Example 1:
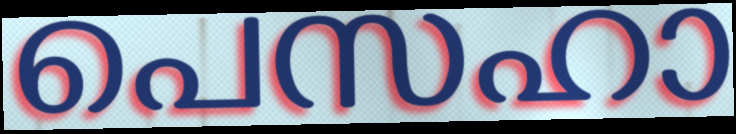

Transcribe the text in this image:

പെസഹാ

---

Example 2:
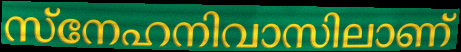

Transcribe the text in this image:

സ്നേഹനിവാസിലാണ്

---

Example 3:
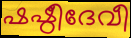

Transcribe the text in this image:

ഷഷ്ഠീദേവീ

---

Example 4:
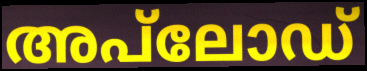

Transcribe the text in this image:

അപ്‌ലോഡ്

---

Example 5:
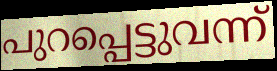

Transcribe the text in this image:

പുറപ്പെട്ടുവന്ന്